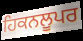
ਹਿਕਨਲੂਪਰ